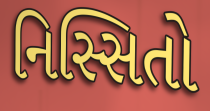
નિસ્સિતો